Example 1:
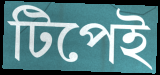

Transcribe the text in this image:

টিপেই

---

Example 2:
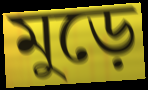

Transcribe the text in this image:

মুড়ে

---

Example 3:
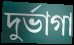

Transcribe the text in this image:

দুর্ভাগা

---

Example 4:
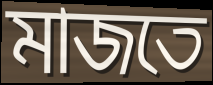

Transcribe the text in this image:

মাজতে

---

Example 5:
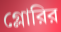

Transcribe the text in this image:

গ্লোরির